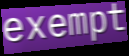
exempt